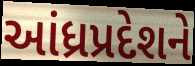
આંધ્રપ્રદેશને